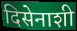
दिसेनाशी